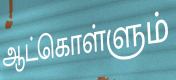
ஆட்கொள்ளும்